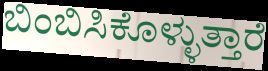
ಬಿಂಬಿಸಿಕೊಳ್ಳುತ್ತಾರೆ